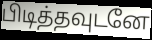
பிடித்தவுடனே